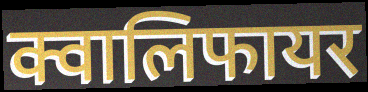
क्वालिफायर